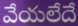
వేయలేదే